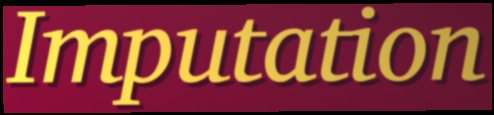
Imputation